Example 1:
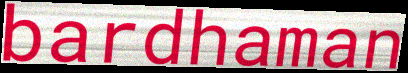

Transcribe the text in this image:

bardhaman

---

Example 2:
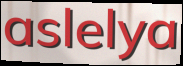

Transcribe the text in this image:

aslelya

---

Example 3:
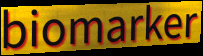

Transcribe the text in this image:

biomarker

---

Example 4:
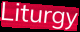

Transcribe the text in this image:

Liturgy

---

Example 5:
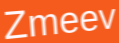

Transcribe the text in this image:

Zmeev